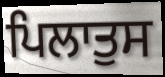
ਪਿਲਾਤੁਸ